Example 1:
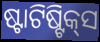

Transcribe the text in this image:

ଷ୍ଟାଟିଷ୍ଟିକ୍‍ସ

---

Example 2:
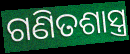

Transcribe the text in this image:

ଗଣିତଶାସ୍ତ୍ର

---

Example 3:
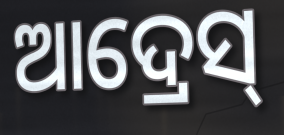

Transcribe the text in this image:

ଆଦ୍ରେସ୍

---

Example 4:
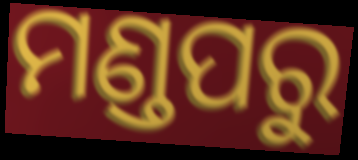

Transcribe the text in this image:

ମଣ୍ଡପରୁ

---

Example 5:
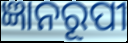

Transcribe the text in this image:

ଜ୍ଞାନରୂପୀ